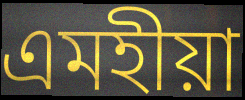
এমহীয়া